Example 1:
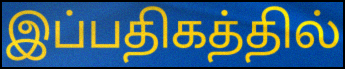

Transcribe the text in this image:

இப்பதிகத்தில்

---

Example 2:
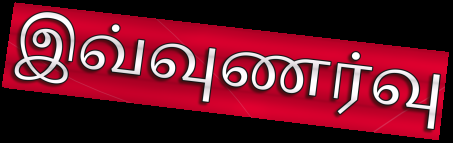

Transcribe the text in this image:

இவ்வுணர்வு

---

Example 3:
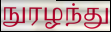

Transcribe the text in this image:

நுரழந்து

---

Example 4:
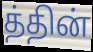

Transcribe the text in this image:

த்தின்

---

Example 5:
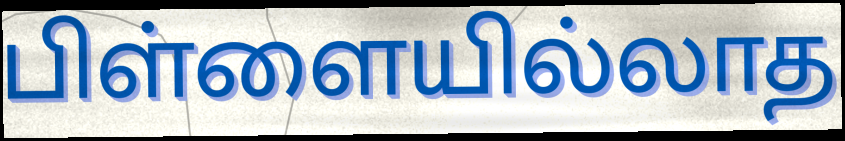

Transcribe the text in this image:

பிள்ளையில்லாத